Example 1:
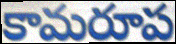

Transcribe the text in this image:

కామరూప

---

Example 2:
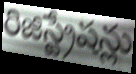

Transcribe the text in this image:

రిజిస్ట్రేషన్లు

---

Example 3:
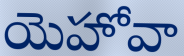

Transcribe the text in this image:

యెహోవా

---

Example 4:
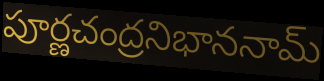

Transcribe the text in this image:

పూర్ణచంద్రనిభాననామ్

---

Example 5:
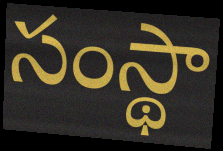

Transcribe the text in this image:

సంస్థా